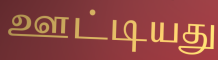
ஊட்டியது